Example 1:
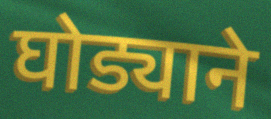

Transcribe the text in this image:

घोड्याने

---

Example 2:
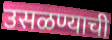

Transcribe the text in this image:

उसळण्याची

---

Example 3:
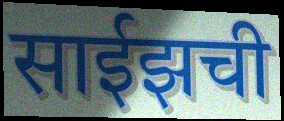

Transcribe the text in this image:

साईझची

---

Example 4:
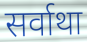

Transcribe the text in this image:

सर्वाथा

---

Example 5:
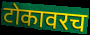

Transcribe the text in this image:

टोकावरच